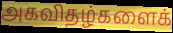
அகவிதழ்களைக்